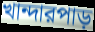
খান্দারপাড়